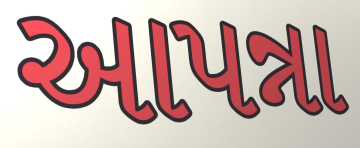
આપન્ના